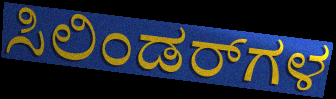
ಸಿಲಿಂಡರ್‌ಗಳ